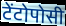
टेंटोपोसी